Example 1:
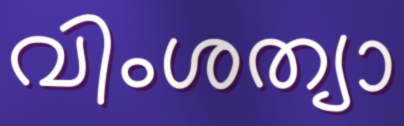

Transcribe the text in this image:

വിംശത്യാ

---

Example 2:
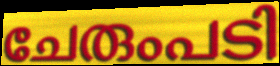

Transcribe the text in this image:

ചേരുംപടി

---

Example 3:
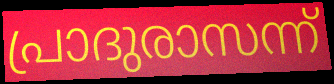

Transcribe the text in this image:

പ്രാദുരാസന്ന്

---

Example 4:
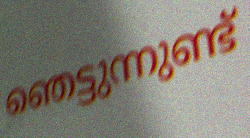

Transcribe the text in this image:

ഞെട്ടുന്നുണ്ട്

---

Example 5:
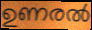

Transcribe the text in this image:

ഉണരൽ